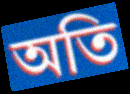
অতি